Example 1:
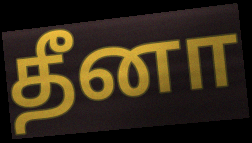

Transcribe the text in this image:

தீனா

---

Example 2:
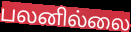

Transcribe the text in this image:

பலனில்லை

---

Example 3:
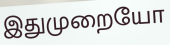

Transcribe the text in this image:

இதுமுறையோ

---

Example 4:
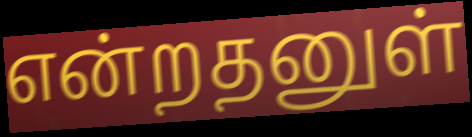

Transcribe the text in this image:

என்றதனுள்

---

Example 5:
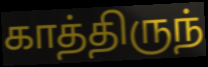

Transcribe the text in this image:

காத்திருந்